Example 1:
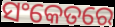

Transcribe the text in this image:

ସଂକେତରେ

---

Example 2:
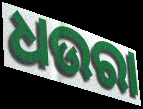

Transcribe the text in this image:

ଧଉରା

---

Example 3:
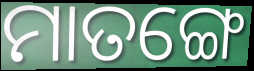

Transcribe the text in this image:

ମାତଙ୍ଗେ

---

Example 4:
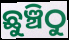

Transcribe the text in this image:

ଛୁଞ୍ଚିଠୁ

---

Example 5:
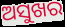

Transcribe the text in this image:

ଅସୁଖର